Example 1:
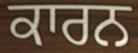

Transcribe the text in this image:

ਕਾਰਨ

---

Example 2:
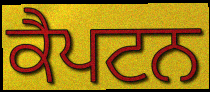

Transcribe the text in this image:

ਕੈਪਟਨ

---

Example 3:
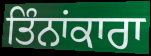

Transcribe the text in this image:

ਤਿੰਨਾਂਕਾਰਾ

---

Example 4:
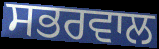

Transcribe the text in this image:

ਸਭਰਵਾਲ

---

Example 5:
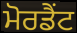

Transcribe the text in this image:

ਮੋਰਡੈਂਟ